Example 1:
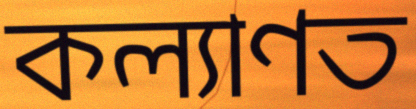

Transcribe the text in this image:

কল্যাণত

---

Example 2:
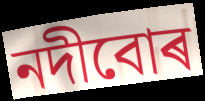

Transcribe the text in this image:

নদীবোৰ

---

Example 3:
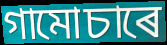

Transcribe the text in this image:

গামোচাৰে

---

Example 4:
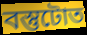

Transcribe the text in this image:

বস্তুটোত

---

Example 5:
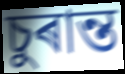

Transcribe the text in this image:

চুৰান্ত